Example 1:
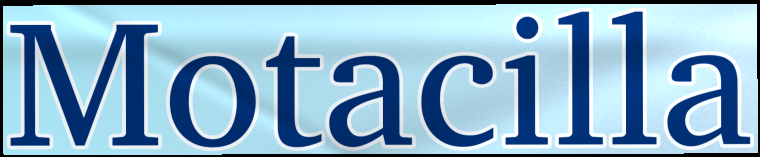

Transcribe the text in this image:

Motacilla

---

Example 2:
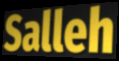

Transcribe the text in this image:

Salleh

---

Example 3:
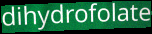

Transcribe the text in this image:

dihydrofolate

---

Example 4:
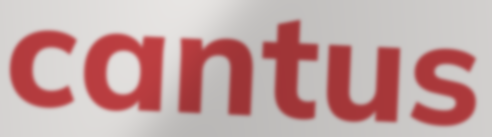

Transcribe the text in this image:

cantus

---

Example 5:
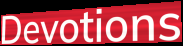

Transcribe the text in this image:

Devotions